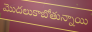
మొదలుకాబోతున్నాయి